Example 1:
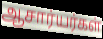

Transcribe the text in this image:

ஆசார்யர்கள்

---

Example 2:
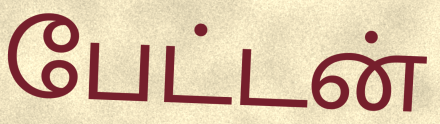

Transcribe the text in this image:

பேட்டன்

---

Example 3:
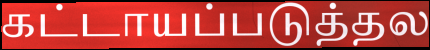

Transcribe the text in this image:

கட்டாயப்படுத்தல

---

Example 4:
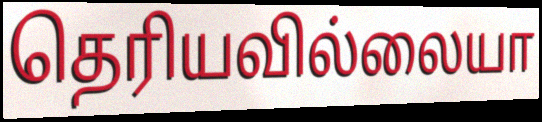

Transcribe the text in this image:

தெரியவில்லையா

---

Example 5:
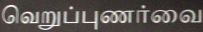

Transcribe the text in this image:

வெறுப்புணர்வை